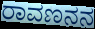
ರಾವಣನನ